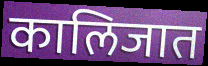
कालिजात